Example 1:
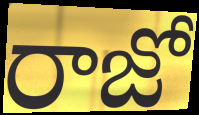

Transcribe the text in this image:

రాజో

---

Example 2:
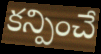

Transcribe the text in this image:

కన్పించే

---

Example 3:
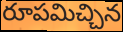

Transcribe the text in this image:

రూపమిచ్చిన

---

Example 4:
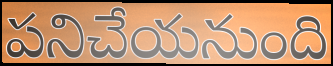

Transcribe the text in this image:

పనిచేయనుంది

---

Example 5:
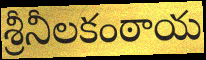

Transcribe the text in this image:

శ్రీనీలకంఠాయ